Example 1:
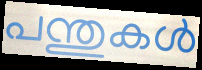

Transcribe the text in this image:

പന്തുകൾ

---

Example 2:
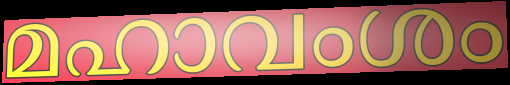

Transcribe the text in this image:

മഹാവംശം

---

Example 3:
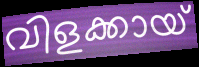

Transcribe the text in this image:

വിളക്കായ്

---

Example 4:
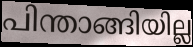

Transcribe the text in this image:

പിന്താങ്ങിയില്ല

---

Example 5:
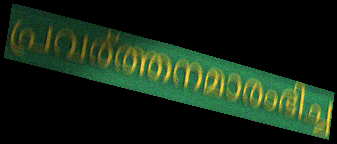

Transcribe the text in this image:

പ്രവര്ത്തനമാരംഭിച്ച